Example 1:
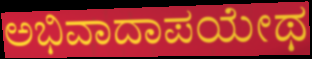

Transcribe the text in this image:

ಅಭಿವಾದಾಪಯೇಥ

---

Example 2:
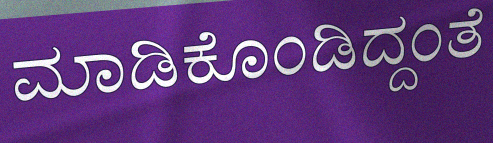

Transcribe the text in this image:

ಮಾಡಿಕೊಂಡಿದ್ದಂತೆ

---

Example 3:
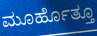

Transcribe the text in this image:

ಮೂರ್ಹೊತ್ತೂ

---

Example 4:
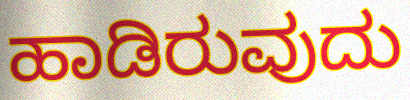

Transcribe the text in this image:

ಹಾಡಿರುವುದು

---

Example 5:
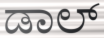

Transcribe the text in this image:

ಡಾಲ್